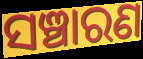
ସଞ୍ଚାରଣ